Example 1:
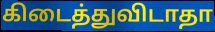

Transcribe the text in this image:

கிடைத்துவிடாதா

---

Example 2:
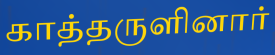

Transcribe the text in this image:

காத்தருளினார்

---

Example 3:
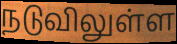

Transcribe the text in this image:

நடுவிலுள்ள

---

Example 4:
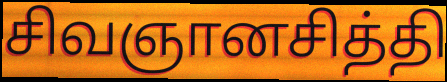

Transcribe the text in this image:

சிவஞானசித்தி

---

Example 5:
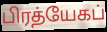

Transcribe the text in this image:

பிரத்யேகப்